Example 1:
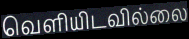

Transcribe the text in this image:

வெளியிடவில்லை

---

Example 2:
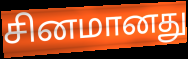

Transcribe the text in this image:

சினமானது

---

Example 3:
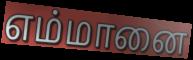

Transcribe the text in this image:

எம்மானை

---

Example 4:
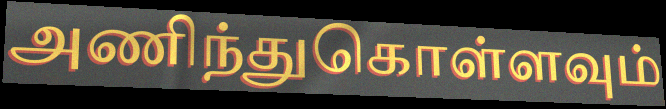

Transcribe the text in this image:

அணிந்துகொள்ளவும்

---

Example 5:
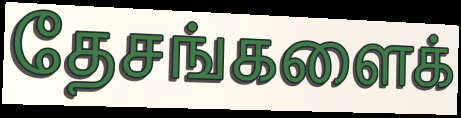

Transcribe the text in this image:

தேசங்களைக்